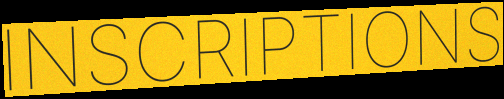
INSCRIPTIONS